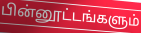
பின்னூட்டங்களும்